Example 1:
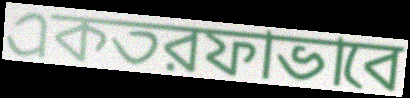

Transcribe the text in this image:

একতরফাভাবে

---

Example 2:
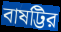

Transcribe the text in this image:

বাষট্টির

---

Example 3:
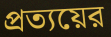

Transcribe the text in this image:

প্রত্যয়ের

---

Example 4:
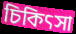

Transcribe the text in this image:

চিকিৎসা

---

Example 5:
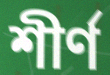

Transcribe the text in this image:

শীর্ণ